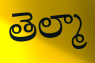
తెల్మా